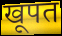
खूपत